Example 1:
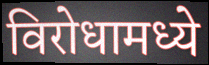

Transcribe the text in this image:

विरोधामध्ये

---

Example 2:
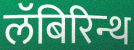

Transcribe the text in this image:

लॅबिरिन्थ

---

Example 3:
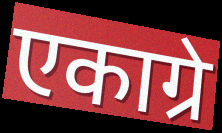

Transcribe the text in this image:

एकाग्रे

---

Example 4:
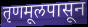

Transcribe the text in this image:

तृणमूलपासून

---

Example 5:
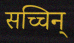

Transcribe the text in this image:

सच्चिन्